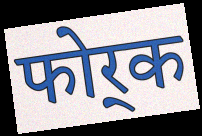
फोर्क